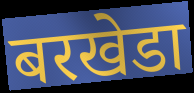
बरखेडा